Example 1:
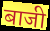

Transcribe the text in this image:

बाजी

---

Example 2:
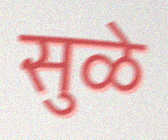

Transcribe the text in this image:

सुळे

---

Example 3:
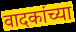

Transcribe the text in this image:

वादकांच्या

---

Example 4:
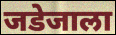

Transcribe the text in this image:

जडेजाला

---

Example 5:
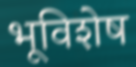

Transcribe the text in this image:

भूविशेष